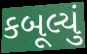
કબૂલ્યું